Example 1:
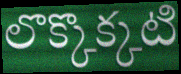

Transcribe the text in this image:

లొక్కొక్కటి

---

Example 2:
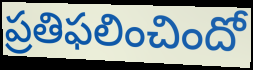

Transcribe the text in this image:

ప్రతిఫలించిందో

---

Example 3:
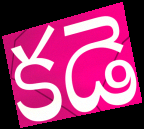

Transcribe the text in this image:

కడె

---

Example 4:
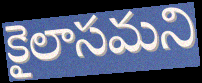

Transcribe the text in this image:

కైలాసమని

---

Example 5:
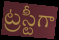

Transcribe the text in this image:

ట్రస్టీగా